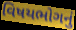
વિષયભોગનું